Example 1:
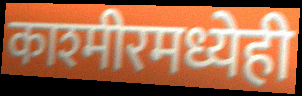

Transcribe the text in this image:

काश्‍मीरमध्येही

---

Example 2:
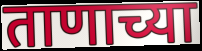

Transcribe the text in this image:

ताणाच्या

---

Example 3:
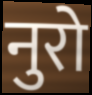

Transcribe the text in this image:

नुरो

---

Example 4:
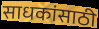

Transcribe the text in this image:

साधकांसाठी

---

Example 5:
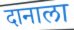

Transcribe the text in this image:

दानाला